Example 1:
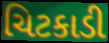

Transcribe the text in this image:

ચિટકાડી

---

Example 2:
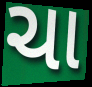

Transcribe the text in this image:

ચા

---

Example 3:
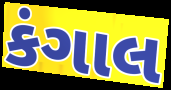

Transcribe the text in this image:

કંગાલ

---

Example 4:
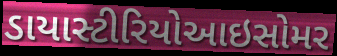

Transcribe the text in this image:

ડાયાસ્ટીરિયોઆઇસોમર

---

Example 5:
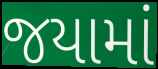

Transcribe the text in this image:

જયામાં